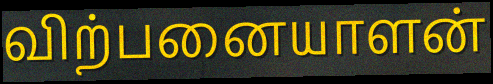
விற்பனையாளன்